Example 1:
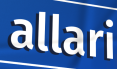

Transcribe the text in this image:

allari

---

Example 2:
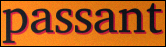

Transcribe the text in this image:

passant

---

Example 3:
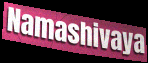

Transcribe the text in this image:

Namashivaya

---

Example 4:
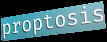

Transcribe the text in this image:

proptosis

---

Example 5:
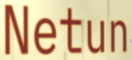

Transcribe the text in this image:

Netun